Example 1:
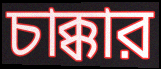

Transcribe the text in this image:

চাক্কার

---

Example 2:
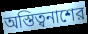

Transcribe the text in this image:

অস্তিত্বনাশের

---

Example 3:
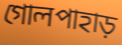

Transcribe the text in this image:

গোলপাহাড়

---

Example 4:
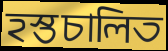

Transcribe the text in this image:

হস্তচালিত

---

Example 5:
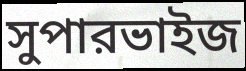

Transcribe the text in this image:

সুপারভাইজ